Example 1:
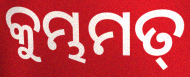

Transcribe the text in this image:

କୁମ୍ଭମତ୍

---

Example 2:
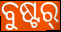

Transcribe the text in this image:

ବୁଷ୍ଟର୍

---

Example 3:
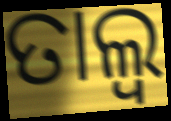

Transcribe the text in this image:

ତାଲ୍ୱ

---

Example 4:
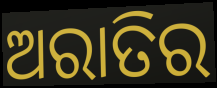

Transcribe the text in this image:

ଅରାତିର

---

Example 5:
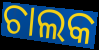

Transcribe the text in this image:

ଚାଲକ